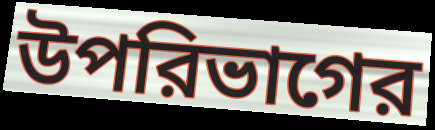
উপরিভাগের